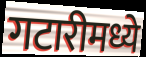
गटारीमध्ये